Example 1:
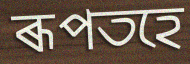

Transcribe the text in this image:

ৰূপতহে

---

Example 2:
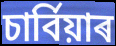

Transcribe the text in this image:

চাৰ্বিয়াৰ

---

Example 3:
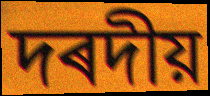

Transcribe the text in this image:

দৰদীয়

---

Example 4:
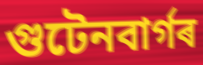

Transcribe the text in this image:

গুটেনবাৰ্গৰ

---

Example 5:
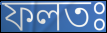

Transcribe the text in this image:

ফলতঃ